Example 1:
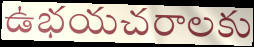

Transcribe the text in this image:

ఉభయచరాలకు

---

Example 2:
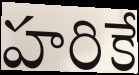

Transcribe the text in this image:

హరికే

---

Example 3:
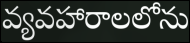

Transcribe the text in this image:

వ్యవహారాలలోను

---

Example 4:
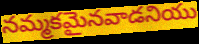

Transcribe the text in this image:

నమ్మకమైనవాడనియు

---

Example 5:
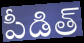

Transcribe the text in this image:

పీడిత్